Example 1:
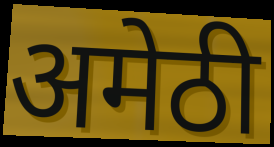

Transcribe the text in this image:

अमेठी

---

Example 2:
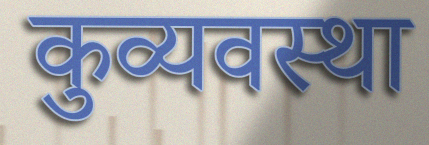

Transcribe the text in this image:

कुव्यवस्था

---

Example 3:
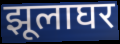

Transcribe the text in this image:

झूलाघर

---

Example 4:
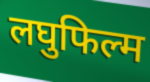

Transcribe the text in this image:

लघुफिल्म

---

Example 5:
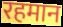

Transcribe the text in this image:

रहमान